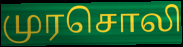
முரசொலி